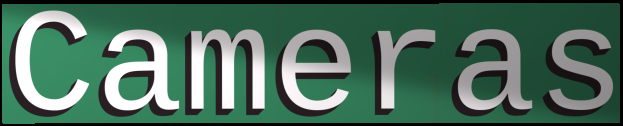
Cameras